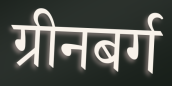
ग्रीनबर्ग